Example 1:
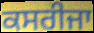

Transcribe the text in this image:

ਕਸਰੀਜਾ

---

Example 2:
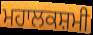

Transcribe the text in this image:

ਮਹਾਲਕਸ਼ਮੀ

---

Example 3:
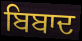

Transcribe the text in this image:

ਬਿਬਾਦ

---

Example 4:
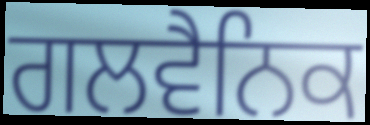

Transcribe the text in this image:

ਗਲਵੈਨਿਕ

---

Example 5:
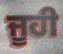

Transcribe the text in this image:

ਜੂਹੀ